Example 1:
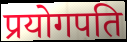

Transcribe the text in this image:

प्रयोगपति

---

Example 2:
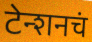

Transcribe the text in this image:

टेन्शनचं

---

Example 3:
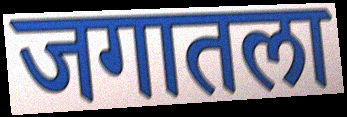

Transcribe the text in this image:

जगातला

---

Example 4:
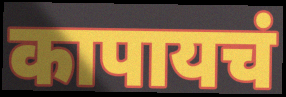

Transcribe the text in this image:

कापायचं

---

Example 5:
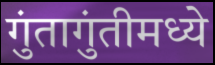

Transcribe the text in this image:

गुंतागुंतीमध्ये